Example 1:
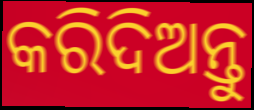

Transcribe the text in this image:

କରିଦିଅନ୍ତୁ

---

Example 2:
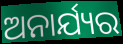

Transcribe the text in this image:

ଅନାର୍ଯ୍ୟର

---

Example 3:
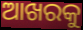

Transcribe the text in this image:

ଆଖରକୁ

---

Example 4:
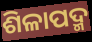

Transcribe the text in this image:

ଶିଳାପଦ୍ମ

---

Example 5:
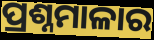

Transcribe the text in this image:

ପ୍ରଶ୍ନମାଳାର